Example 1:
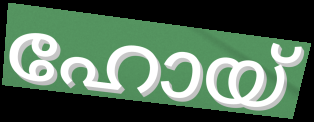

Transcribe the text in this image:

ഹോയ്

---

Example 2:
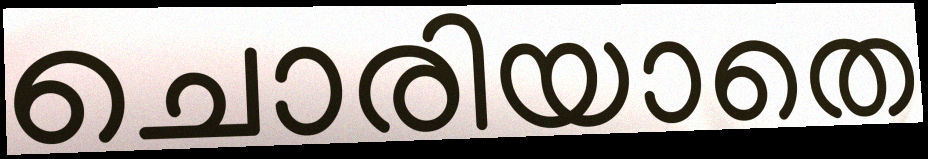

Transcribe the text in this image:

ചൊരിയാതെ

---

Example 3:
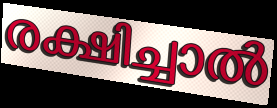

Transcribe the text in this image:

രക്ഷിച്ചാൽ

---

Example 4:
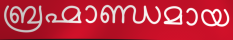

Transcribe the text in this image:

ബ്രഹ്മാണ്ഡമായ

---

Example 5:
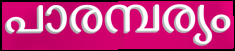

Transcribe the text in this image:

പാരമ്പര്യം